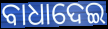
ବାଧାଦେଇ